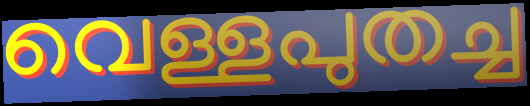
വെള്ളപുതച്ച